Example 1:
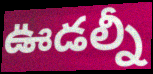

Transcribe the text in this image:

ఊడల్నీ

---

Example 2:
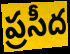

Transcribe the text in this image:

ప్రసీద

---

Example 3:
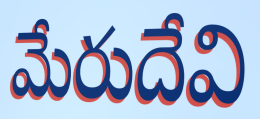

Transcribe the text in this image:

మేరుదేవి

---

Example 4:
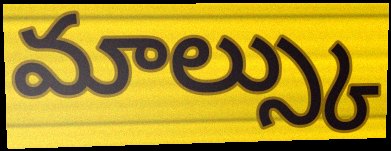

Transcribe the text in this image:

మాల్స్కు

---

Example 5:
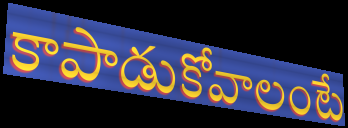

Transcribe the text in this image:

కాపాడుకోవాలంటే